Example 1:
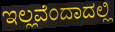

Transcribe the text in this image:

ಇಲ್ಲವೆಂದಾದಲ್ಲಿ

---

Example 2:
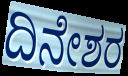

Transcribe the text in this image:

ದಿನೇಶರ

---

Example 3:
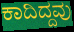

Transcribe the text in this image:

ಕಾದಿದ್ದವು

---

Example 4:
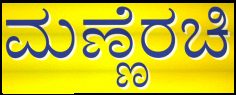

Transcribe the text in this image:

ಮಣ್ಣೆರಚಿ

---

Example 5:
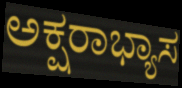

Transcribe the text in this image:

ಅಕ್ಷರಾಭ್ಯಾಸ